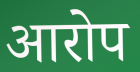
आरोप